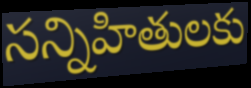
సన్నిహితులకు